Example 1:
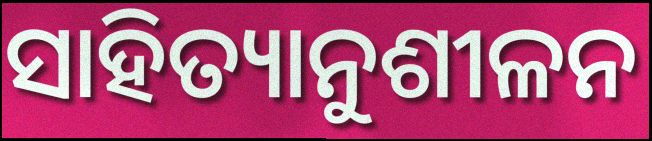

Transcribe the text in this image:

ସାହିତ୍ୟାନୁଶୀଳନ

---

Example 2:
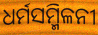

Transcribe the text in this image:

ଧର୍ମସମ୍ମିଳନୀ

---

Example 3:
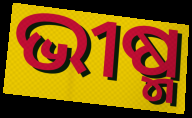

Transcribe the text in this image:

ଭୀଷ୍ମ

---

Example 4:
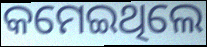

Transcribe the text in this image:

କମେଇଥିଲେ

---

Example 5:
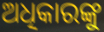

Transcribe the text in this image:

ଅଧିକାରଙ୍କୁ